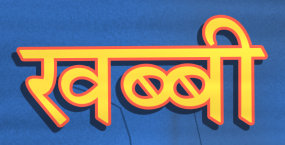
खब्बी